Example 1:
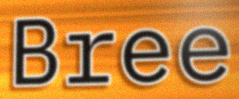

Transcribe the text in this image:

Bree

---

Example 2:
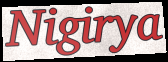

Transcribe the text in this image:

Nigirya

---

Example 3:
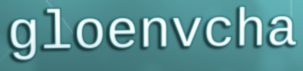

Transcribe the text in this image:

gloenvcha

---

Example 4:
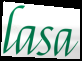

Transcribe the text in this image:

lasa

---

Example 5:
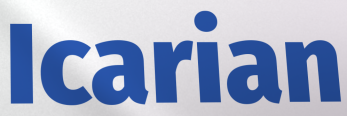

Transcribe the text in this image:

Icarian